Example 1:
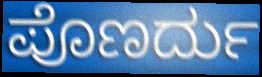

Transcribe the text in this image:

ಪೊಣರ್ದು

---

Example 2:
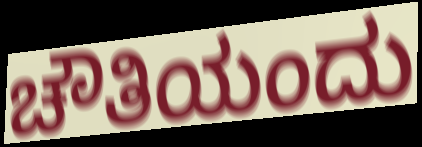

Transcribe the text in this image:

ಚೌತಿಯಂದು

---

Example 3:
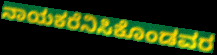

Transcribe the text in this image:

ನಾಯಕರೆನಿಸಿಕೊಂಡವರ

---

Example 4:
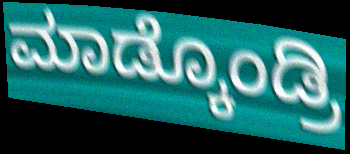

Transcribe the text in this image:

ಮಾಡ್ಕೊಂಡ್ರಿ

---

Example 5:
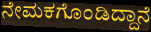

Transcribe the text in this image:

ನೇಮಕಗೊಂಡಿದ್ದಾನೆ